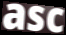
asc